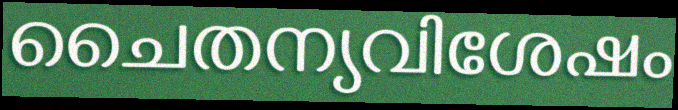
ചൈതന്യവിശേഷം